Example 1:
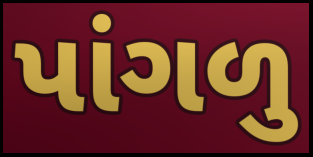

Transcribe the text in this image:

પાંગળુ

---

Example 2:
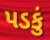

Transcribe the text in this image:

પડકું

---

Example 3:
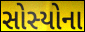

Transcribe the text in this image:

સોસ્યોના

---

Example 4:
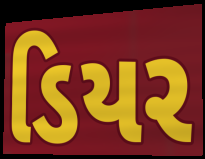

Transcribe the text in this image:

ડિયર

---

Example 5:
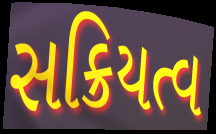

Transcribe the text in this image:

સક્રિયત્વ